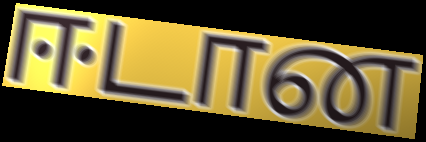
ஈடான